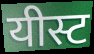
यीस्ट